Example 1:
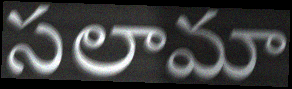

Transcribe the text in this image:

సలామా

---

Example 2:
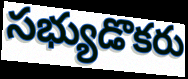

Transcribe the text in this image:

సభ్యుడొకరు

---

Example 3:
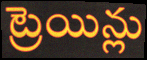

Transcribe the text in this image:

ట్రెయిన్లు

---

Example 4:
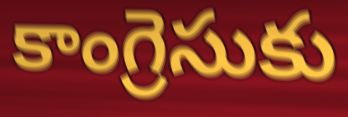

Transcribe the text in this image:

కాంగ్రెసుకు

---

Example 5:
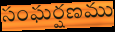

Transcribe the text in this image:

సంఘర్షణము